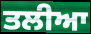
ਤਲੀਆ